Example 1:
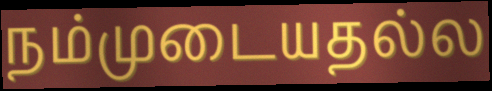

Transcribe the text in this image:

நம்முடையதல்ல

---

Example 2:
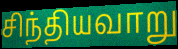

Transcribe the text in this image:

சிந்தியவாறு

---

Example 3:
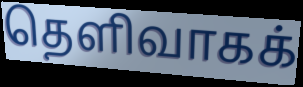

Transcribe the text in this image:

தெளிவாகக்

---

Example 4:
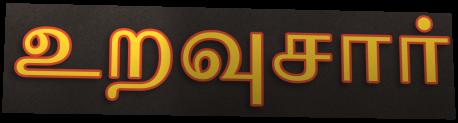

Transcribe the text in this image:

உறவுசார்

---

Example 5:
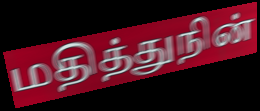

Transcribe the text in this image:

மதித்துநின்